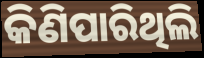
କିଣିପାରିଥିଲି